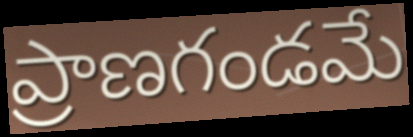
ప్రాణగండమే